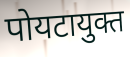
पोयटायुक्त